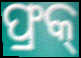
ଫ୍ରକ୍